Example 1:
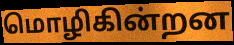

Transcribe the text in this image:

மொழிகின்றன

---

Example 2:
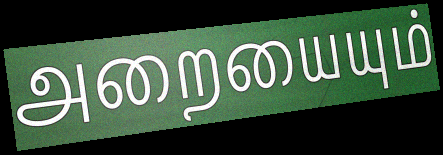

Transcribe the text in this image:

அறையையும்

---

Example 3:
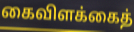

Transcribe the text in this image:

கைவிளக்கைத்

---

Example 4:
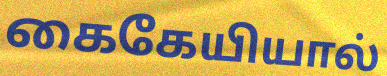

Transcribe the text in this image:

கைகேயியால்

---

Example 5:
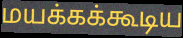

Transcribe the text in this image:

மயக்கக்கூடிய